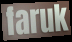
faruk